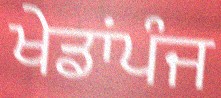
ਖੇਡਾਂਪੰਜ